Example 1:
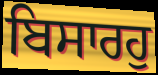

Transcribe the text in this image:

ਬਿਸਾਰਹੁ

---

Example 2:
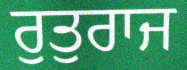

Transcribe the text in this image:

ਰੁਤੁਰਾਜ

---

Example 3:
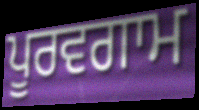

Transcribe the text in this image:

ਪੂਰਵਗਾਮ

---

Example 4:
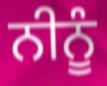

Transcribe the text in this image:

ਨੀਨੂੰ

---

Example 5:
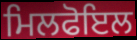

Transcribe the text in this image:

ਮਿਲਫੋਇਲ